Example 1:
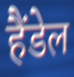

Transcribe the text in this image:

हैंडेल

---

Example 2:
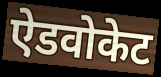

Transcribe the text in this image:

ऐडवोकेट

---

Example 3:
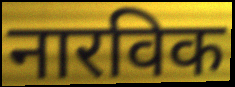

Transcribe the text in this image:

नारविक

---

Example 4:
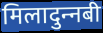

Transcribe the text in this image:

मिलादुन्नबी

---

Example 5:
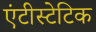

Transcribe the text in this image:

एंटीस्टेटिक